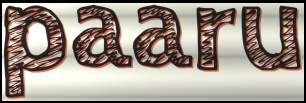
paaru